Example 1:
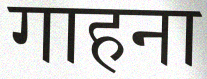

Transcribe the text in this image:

गाहना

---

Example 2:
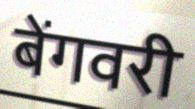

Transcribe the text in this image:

बेंगवरी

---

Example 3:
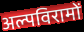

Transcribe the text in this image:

अल्पविरामों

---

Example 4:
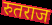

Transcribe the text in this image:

रुतराज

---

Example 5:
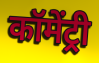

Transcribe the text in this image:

कॉमेंट्री